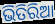
ଭିତିରିଆ